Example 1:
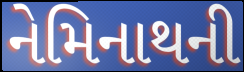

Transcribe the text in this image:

નેમિનાથની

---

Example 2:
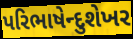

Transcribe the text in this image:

પરિભાષેન્દુશેખર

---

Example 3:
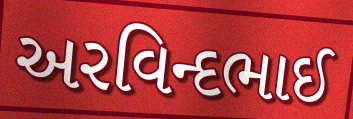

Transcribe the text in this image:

અરવિન્દભાઈ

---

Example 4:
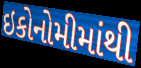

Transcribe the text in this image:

ઇકોનોમીમાંથી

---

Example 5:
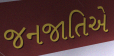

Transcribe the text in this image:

જનજાતિએ